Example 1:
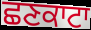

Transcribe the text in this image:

ਛਣਕਾਟਾ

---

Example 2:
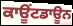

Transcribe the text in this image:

ਕਾਊਂਟਡਾਊਨ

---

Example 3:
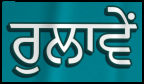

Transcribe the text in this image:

ਰੁਲਾਵੇਂ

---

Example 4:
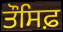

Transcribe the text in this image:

ਤੌਸਿਫ਼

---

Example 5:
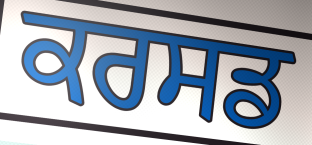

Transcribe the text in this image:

ਕਰਸਡ